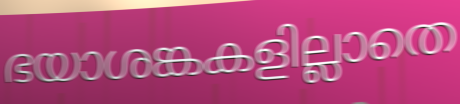
ഭയാശങ്കകളില്ലാതെ